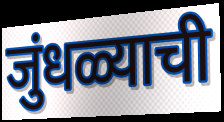
जुंधळ्याची